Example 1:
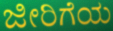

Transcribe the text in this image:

ಜೀರಿಗೆಯ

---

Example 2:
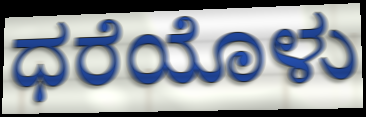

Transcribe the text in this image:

ಧರೆಯೊಳು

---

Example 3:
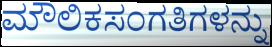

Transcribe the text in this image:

ಮೌಲಿಕಸಂಗತಿಗಳನ್ನು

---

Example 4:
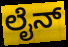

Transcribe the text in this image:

ಲೈನ್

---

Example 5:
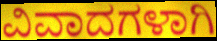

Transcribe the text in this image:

ವಿವಾದಗಳಾಗಿ